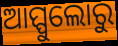
ଆପ୍ପୁଲୋରୁ